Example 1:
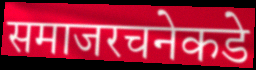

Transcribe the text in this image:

समाजरचनेकडे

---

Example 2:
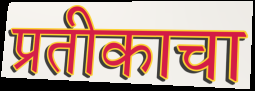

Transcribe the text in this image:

प्रतीकाचा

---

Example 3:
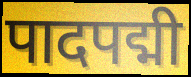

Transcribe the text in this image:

पादपद्मी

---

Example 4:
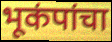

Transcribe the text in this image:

भूकंपांचा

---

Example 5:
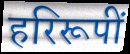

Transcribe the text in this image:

हरिरूपीं